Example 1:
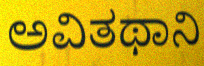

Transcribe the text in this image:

ಅವಿತಥಾನಿ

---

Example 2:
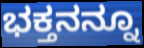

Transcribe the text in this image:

ಭಕ್ತನನ್ನೂ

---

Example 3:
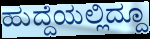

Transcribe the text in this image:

ಹುದ್ದೆಯಲ್ಲಿದ್ದೂ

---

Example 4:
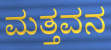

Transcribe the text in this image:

ಮತ್ತವನ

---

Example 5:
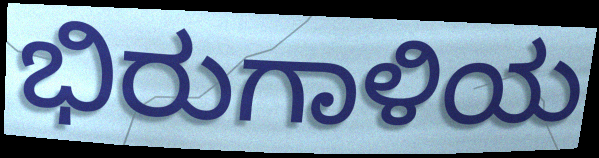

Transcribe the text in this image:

ಭಿರುಗಾಳಿಯ